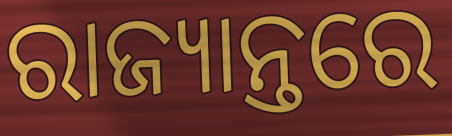
ରାଜ୍ୟାନ୍ତରେ